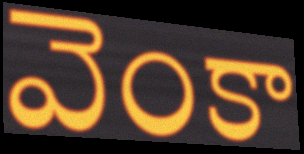
వెంకా